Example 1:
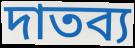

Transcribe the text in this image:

দাতব্য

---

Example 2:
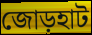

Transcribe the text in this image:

জোড়হাট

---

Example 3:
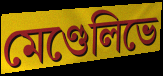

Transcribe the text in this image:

মেণ্ডেলিভে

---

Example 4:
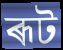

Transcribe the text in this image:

ৰূট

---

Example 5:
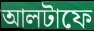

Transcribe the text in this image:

আলটাফে